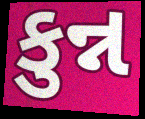
કુન્ન